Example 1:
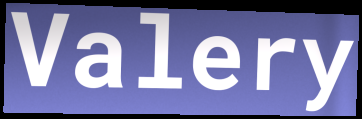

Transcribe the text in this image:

Valery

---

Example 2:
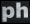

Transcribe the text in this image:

ph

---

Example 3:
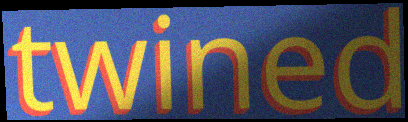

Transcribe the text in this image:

twined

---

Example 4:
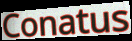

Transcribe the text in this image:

Conatus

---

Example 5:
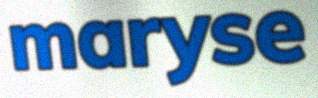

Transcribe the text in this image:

maryse